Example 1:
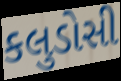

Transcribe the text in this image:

કલુડોસી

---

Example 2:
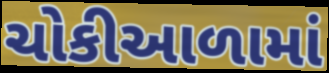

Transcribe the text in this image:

ચોકીઆળામાં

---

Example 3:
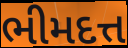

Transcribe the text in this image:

ભીમદત્ત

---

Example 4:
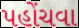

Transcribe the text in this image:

પહોંચવા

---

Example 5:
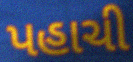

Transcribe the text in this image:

પહાચી